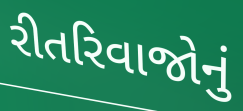
રીતરિવાજોનું